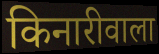
किनारीवाला